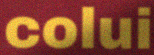
colui